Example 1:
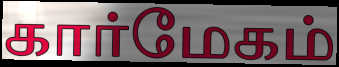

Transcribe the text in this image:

கார்மேகம்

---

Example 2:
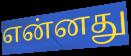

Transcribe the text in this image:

என்னது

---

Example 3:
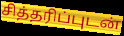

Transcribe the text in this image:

சித்தரிப்புடன்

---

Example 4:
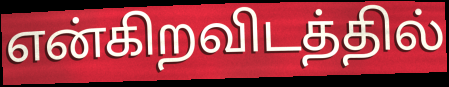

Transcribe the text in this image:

என்கிறவிடத்தில்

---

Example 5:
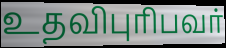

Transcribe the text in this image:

உதவிபுரிபவர்